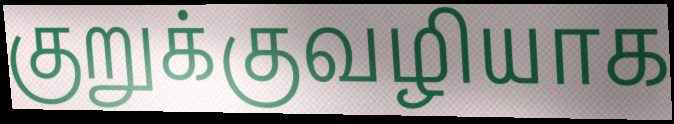
குறுக்குவழியாக